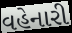
વહેનારી